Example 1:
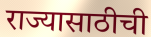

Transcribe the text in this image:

राज्यासाठीची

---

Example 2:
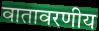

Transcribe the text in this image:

वातावरणीय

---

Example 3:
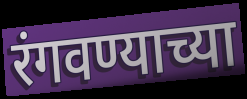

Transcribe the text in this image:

रंगवण्याच्या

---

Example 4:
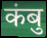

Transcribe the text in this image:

कंबु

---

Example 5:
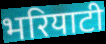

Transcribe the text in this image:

भरियाटी